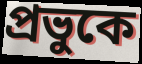
প্রভুকে